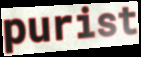
purist